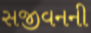
સજીવનની